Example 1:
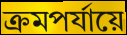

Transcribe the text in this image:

ক্রমপর্যায়ে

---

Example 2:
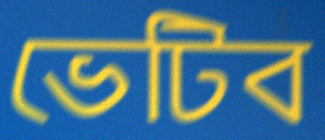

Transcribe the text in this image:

ভেটিব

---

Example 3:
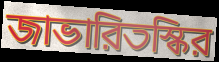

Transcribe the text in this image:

জাভারিতস্কির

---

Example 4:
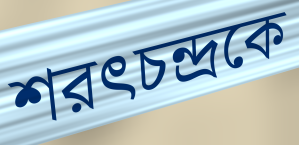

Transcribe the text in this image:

শরৎচন্দ্রকে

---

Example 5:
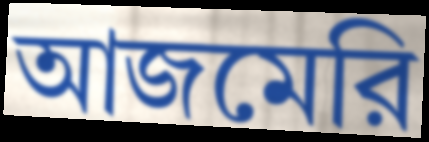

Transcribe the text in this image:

আজমেরি